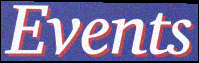
Events